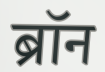
ब्रॉन